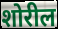
शोरील